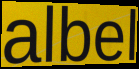
albel